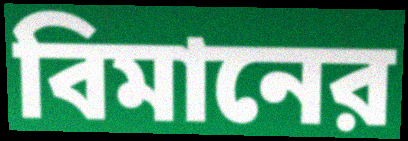
বিমানের